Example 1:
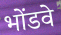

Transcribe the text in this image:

भोंडवे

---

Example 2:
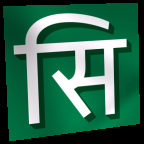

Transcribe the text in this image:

सि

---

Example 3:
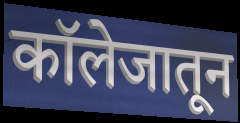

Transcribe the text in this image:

कॉलेजातून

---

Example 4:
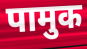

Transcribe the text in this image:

पामुक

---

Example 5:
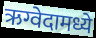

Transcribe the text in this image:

ऋग्वेदामध्ये